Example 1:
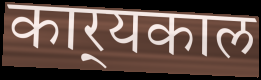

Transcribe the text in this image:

कार्यकाल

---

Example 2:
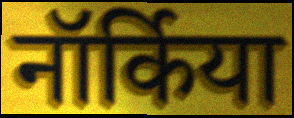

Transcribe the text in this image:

नॉर्किया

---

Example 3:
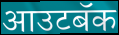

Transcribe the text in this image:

आउटबॅक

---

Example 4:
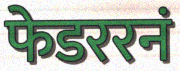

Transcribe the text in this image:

फेडररनं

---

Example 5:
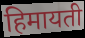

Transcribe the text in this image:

हिमायती